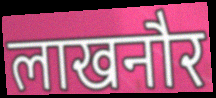
लाखनौर